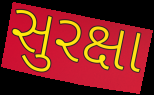
સુરક્ષા